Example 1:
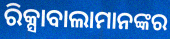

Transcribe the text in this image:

ରିକ୍ସାବାଲାମାନଙ୍କର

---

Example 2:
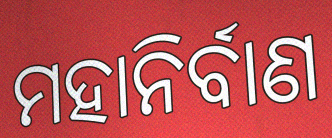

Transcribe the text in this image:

ମହାନିର୍ବାଣ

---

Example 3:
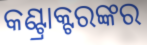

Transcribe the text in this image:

କଣ୍ଟ୍ରାକ୍ଟରଙ୍କର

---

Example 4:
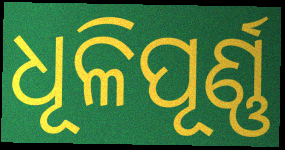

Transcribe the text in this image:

ଧୂଳିପୂର୍ଣ୍ଣ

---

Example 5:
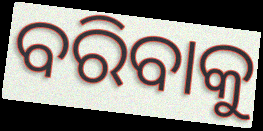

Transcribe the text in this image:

ବରିବାକୁ